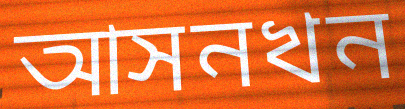
আসনখন